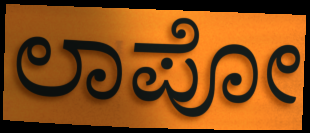
ಲಾಪೋ